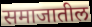
समाजातील